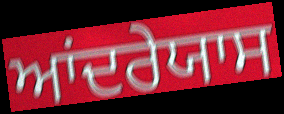
ਆਂਦਰੇਯਾਸ